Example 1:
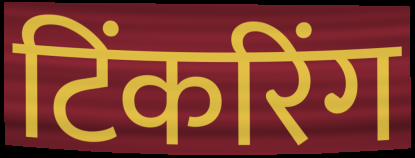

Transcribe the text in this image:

टिंकरिंग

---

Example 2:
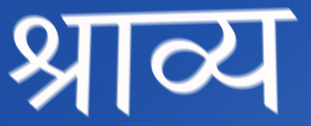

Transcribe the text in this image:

श्राव्य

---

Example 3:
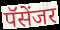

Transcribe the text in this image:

पॅसेंजर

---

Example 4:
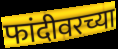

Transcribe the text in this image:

फांदीवरच्या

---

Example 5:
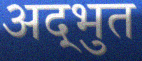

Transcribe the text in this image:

अद्‍भुत